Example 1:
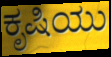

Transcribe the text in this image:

ಕೃಷಿಯು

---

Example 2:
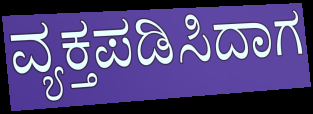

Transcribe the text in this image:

ವ್ಯಕ್ತಪಡಿಸಿದಾಗ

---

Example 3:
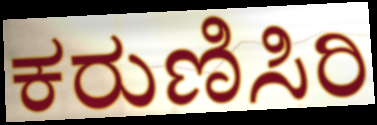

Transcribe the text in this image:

ಕರುಣಿಸಿರಿ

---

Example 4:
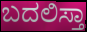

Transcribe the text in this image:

ಬದಲಿಸ್ತಾ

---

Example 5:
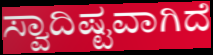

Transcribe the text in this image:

ಸ್ವಾದಿಷ್ಟವಾಗಿದೆ